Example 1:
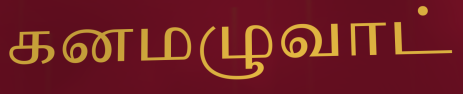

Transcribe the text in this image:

கனமழுவாட்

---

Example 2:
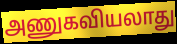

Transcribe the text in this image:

அணுகவியலாது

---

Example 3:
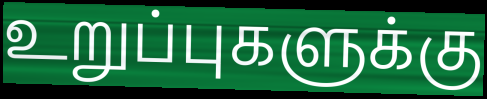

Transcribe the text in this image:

உறுப்புகளுக்கு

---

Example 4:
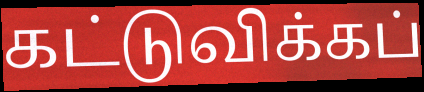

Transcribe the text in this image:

கட்டுவிக்கப்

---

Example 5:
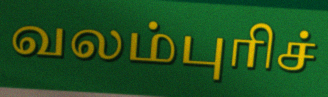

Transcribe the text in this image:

வலம்புரிச்